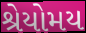
શ્રેયોમય